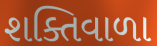
શક્તિવાળા